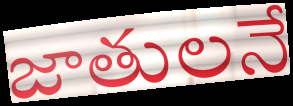
జాతులనే